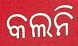
କଲନି